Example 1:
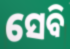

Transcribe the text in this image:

ସେବି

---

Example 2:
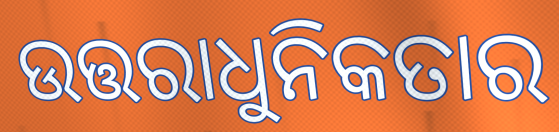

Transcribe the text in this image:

ଉତ୍ତରାଧୁନିକତାର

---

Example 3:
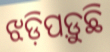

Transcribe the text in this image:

ଝଡ଼ିପଡ଼ୁଛି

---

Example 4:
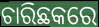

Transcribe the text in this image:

ଚାରିଛକରେ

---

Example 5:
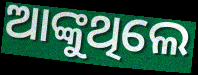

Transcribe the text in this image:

ଆଙ୍କୁଥିଲେ